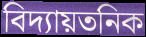
বিদ্যায়তনিক